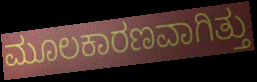
ಮೂಲಕಾರಣವಾಗಿತ್ತು